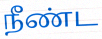
நீண்ட